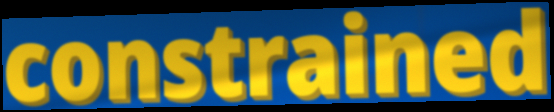
constrained